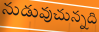
నుడువుచున్నది